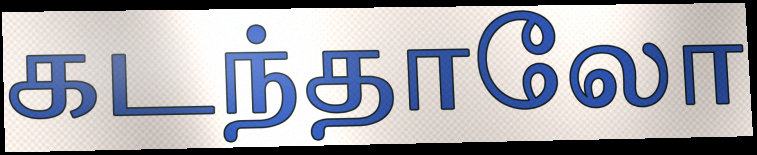
கடந்தாலோ